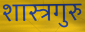
शास्त्रगुरु